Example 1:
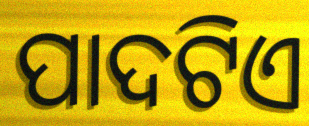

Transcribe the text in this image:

ପାଦଟିଏ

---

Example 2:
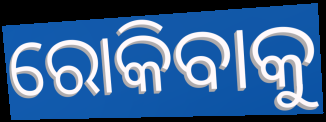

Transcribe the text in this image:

ରୋକିବାକୁ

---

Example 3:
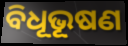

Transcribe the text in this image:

ବିଧୂଭୂଷଣ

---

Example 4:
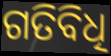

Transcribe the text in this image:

ଗତିବିଧି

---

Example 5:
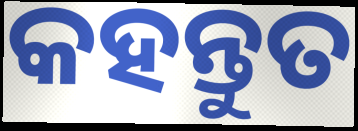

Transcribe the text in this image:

କହନ୍ତୁତ